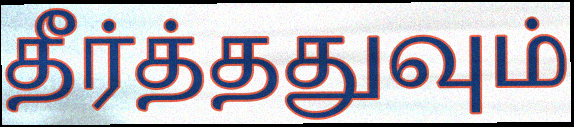
தீர்த்ததுவும்